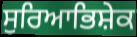
ਸੁਰਿਆਭਿਸ਼ੇਕ